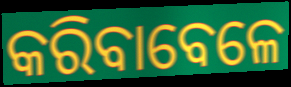
କରିବାବେଳେ